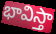
భావిస్తా